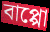
বাপ্পো